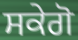
ਸਕੇਗੋ